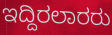
ಇದ್ದಿರಲಾರರು